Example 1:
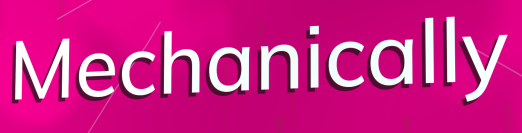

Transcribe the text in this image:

Mechanically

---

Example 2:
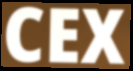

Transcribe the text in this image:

CEX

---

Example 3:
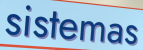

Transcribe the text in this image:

sistemas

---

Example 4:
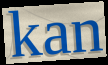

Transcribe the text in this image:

kan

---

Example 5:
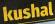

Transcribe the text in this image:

kushal